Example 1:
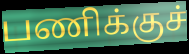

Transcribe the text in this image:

பணிக்குச்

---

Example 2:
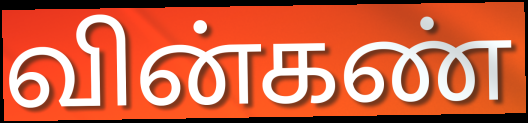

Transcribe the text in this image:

வின்கண்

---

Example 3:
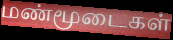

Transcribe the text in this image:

மண்மூடைகள்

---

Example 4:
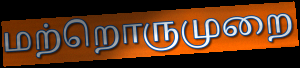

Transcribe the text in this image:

மற்றொருமுறை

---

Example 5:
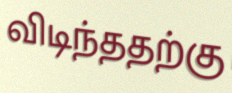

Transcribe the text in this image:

விடிந்ததற்கு